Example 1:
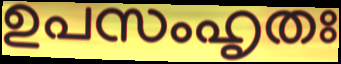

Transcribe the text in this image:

ഉപസംഹൃതഃ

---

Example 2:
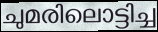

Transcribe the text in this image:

ചുമരിലൊട്ടിച്ച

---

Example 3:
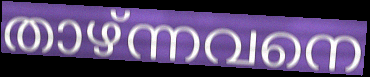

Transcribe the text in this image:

താഴ്ന്നവനെ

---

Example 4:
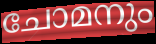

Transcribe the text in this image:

ചോമനും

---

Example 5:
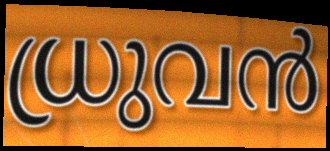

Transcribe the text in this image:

ധ്രുവൻ